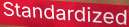
Standardized